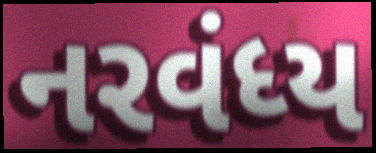
નરવંધ્ય